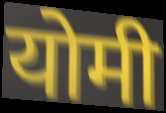
योमी